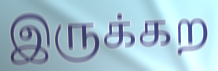
இருக்கற